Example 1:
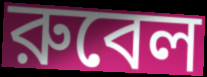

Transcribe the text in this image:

রুবেল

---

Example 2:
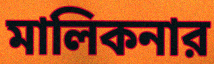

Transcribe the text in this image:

মালিকনার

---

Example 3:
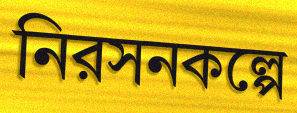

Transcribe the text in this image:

নিরসনকল্পে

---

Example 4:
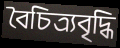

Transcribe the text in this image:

বৈচিত্র্যবৃদ্ধি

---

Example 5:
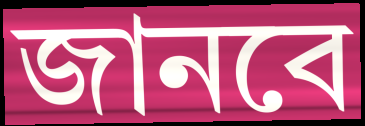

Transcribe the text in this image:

জানবে